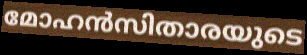
മോഹൻസിതാരയുടെ